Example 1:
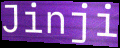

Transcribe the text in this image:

Jinji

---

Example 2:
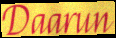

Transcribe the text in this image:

Daarun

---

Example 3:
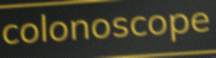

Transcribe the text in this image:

colonoscope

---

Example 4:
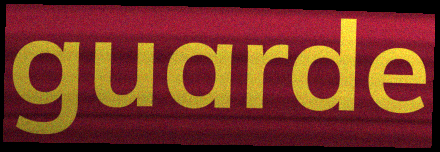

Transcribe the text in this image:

guarde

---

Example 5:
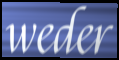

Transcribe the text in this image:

weder